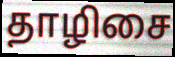
தாழிசை